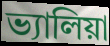
ভ্যালিয়া